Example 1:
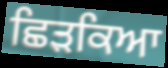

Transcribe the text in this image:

ਛਿੜਕਿਆ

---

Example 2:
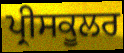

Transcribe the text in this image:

ਪ੍ਰੀਸਕੂਲਰ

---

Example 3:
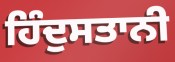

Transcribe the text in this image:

ਹਿੰਦੁਸਤਾਨੀ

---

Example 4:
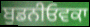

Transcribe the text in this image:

ਬੁਡਨੀਓਵਕਾ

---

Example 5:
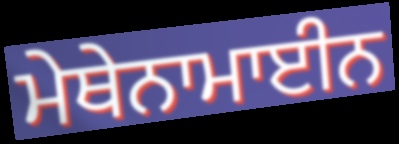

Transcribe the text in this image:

ਮੇਥੇਨਾਮਾਈਨ